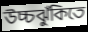
উচ্চঝুঁকিতে